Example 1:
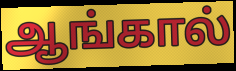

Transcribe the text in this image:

ஆங்கால்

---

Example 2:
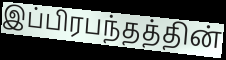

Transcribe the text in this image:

இப்பிரபந்தத்தின்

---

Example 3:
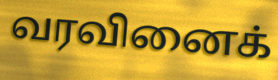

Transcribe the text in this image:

வரவினைக்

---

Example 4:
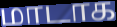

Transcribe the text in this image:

மாடாக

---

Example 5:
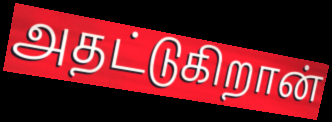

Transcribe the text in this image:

அதட்டுகிறான்